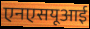
एनएसयूआई